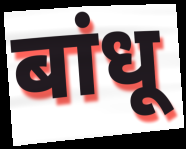
बांधू